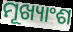
ମୂଖ୍ୟାଂଶ